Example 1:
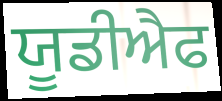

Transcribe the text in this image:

ਯੂਡੀਐਫ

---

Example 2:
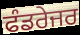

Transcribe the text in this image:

ਫੰਡਰੇਜਰ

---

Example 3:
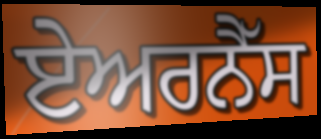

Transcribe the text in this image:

ਏਅਰਨੈੱਸ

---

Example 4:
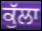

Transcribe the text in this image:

ਕੁੱਲਾ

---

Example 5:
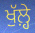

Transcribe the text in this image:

ਖੁੱਲ਼੍ਹੇ